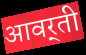
आवर्ती